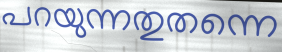
പറയുന്നതുതന്നെ